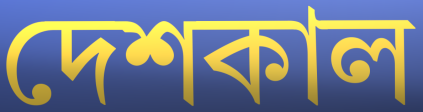
দেশকাল